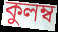
কুলম্ব